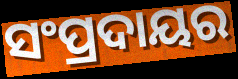
ସଂପ୍ରଦାୟର